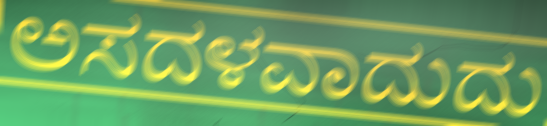
ಅಸದಳವಾದುದು